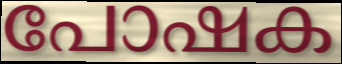
പോഷക